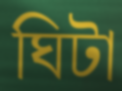
ঘিটা